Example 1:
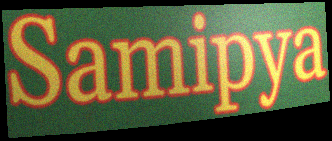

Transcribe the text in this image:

Samipya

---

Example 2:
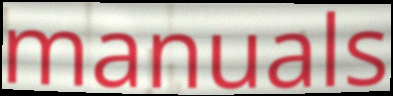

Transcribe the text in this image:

manuals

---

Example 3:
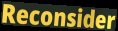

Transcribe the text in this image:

Reconsider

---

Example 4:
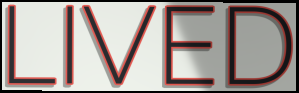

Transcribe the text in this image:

LIVED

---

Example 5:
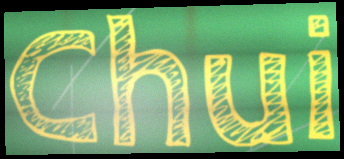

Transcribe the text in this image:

Chui